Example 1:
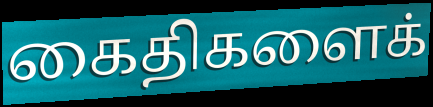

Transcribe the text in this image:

கைதிகளைக்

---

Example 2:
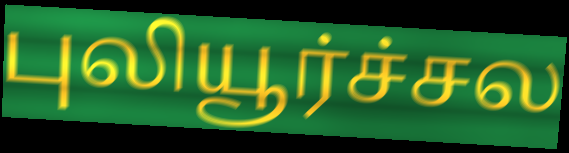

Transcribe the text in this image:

புலியூர்ச்சல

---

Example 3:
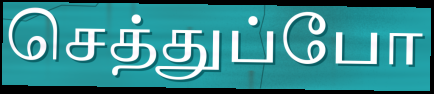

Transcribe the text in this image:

செத்துப்போ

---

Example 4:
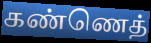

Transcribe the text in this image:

கண்ணெத்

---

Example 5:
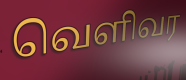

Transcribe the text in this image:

வெளிவர